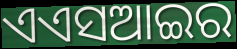
ଏଏସଆଇର